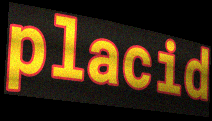
placid